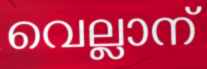
വെല്ലാന്